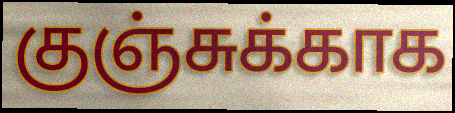
குஞ்சுக்காக